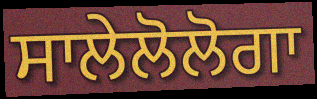
ਸਾਲੇਲੋਲੋਗਾ